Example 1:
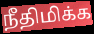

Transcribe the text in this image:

நீதிமிக்க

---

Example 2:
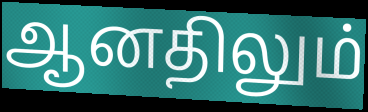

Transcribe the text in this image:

ஆனதிலும்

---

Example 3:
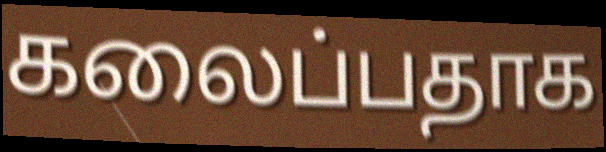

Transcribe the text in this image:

கலைப்பதாக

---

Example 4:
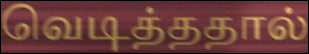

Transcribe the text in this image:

வெடித்ததால்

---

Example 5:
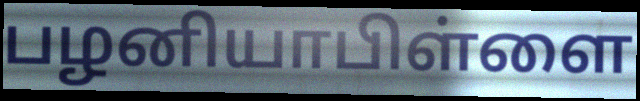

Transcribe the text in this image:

பழனியாபிள்ளை